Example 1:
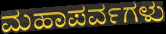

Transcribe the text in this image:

ಮಹಾಪರ್ವಗಳು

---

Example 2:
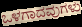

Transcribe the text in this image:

ಒಳಗಾದವುಗಳು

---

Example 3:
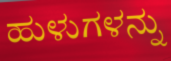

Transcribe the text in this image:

ಹುಳುಗಳನ್ನು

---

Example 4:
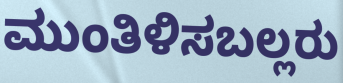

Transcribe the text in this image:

ಮುಂತಿಳಿಸಬಲ್ಲರು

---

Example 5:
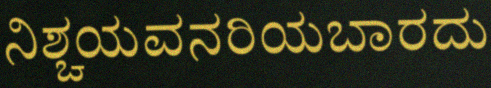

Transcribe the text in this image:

ನಿಶ್ಚಯವನರಿಯಬಾರದು